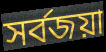
সর্বজয়া